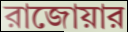
রাজোয়ার